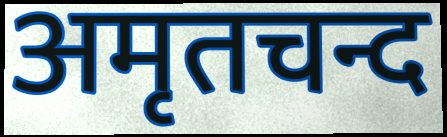
अमृतचन्द